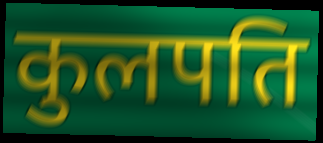
कुलपति